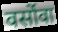
वर्सोवा